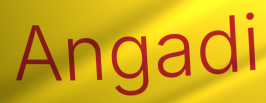
Angadi